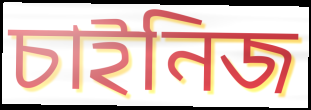
চাইনিজ